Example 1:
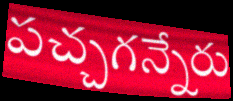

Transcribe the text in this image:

పచ్చగన్నేరు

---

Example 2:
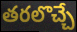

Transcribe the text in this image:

తరలొచ్చే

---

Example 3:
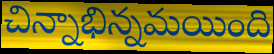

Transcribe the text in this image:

చిన్నాభిన్నమయింది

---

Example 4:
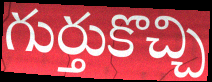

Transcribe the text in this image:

గుర్తుకొచ్చి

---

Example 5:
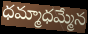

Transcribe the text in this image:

ధమ్మాధమ్మేన